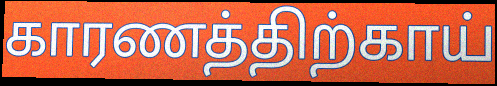
காரணத்திற்காய்